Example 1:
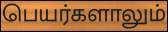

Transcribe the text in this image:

பெயர்களாலும்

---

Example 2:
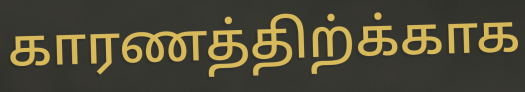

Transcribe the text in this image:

காரணத்திற்க்காக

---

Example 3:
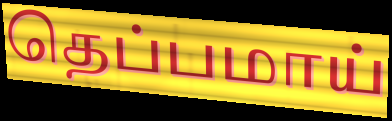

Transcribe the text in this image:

தெப்பமாய்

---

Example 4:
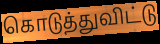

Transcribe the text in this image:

கொடுத்துவிட்டு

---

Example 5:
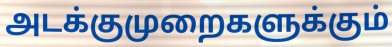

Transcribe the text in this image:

அடக்குமுறைகளுக்கும்